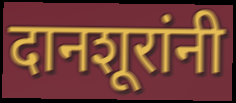
दानशूरांनी